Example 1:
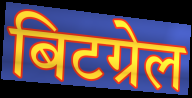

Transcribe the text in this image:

बिटग्रेल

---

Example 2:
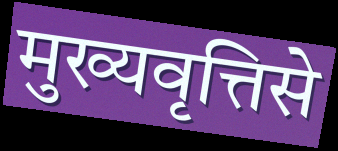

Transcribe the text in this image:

मुख्यवृत्तिसे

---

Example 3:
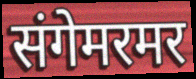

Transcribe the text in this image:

संगेमरमर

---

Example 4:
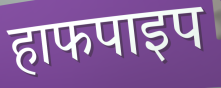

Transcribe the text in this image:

हाफपाइप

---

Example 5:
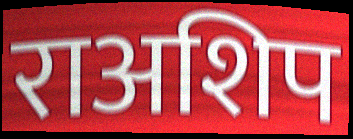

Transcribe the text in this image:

राअशिप